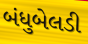
બંધુબેલડી